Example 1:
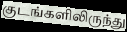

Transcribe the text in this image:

குடங்களிலிருந்து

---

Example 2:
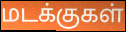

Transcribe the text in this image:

மடக்குகள்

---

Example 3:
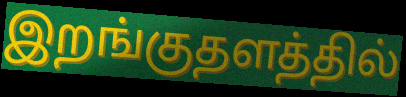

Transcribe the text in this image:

இறங்குதளத்தில்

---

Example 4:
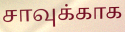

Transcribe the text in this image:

சாவுக்காக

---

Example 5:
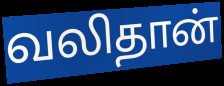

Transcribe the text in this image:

வலிதான்